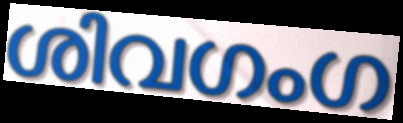
ശിവഗംഗ